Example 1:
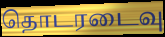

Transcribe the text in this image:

தொடரடைவு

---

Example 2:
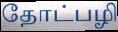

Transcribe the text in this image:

தோட்பழி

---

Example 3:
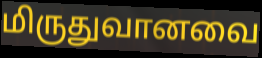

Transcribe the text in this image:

மிருதுவானவை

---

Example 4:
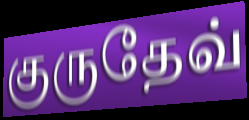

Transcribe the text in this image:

குருதேவ்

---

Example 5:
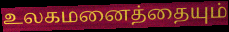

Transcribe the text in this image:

உலகமனைத்தையும்